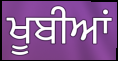
ਖੂਬੀਆਂ